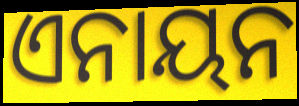
ଏନାୟନ